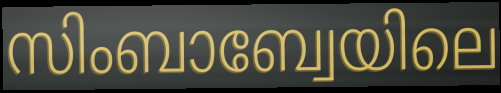
സിംബാബ്വേയിലെ